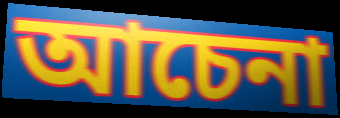
আচেনা